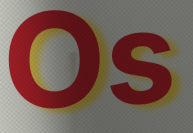
Os